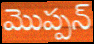
మొప్పన్